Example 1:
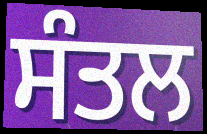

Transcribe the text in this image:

ਸੰਤਲ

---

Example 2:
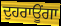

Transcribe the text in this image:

ਦੁਹਰਾਊਂਗਾ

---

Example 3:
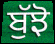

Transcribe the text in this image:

ਬੁੱਝੋ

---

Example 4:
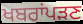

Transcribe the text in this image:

ਖਬਰਾਂਪੜਣ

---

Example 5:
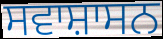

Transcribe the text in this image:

ਸਵਾਸ਼ਾਸਨ